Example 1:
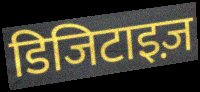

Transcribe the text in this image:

डिजिटाइज़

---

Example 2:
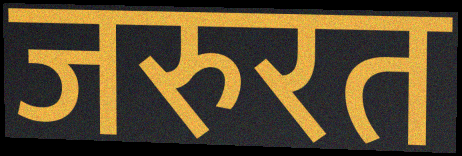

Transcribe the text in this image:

जरुरत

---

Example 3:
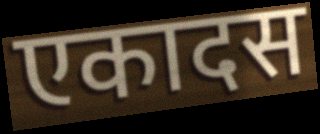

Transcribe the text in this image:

एकादस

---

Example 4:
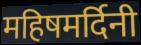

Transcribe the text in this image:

महिषमर्दिनी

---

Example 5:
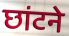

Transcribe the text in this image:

छांटने